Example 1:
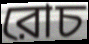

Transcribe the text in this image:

রোচ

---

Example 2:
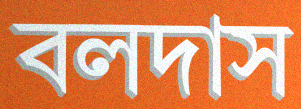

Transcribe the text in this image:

বলদাস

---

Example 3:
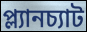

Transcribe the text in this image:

প্ল্যানচ্যাট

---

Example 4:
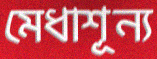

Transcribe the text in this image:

মেধাশূন্য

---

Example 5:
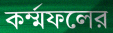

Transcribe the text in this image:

কর্ম্মফলের